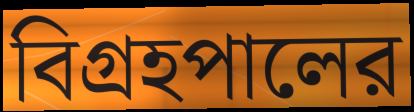
বিগ্রহপালের